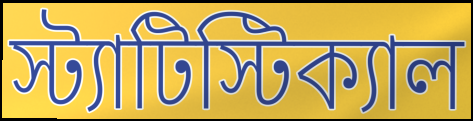
স্ট্যাটিস্টিক্যাল